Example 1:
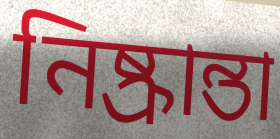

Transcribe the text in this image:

নিষ্ক্রান্তা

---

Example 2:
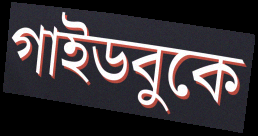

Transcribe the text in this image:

গাইডবুকে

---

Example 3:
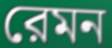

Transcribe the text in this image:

রেমন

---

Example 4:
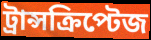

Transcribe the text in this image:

ট্রান্সক্রিপ্টেজ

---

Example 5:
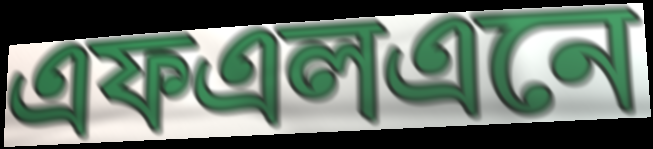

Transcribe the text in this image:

এফএলএনে